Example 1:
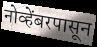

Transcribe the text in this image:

नोव्हेंबरपासून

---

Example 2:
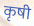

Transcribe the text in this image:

कृषी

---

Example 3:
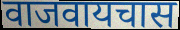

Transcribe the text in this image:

वाजवायचास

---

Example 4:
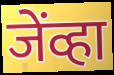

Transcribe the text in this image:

जेंव्हा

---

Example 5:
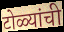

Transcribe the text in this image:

टोळ्यांची